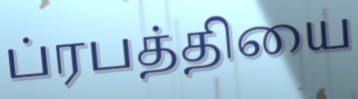
ப்ரபத்தியை